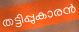
തട്ടിപ്പുകാരൻ